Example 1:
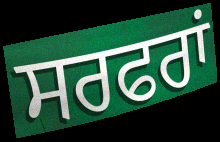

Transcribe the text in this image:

ਸਰਫਰਾਂ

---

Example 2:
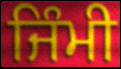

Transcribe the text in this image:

ਜਿੰਮੀ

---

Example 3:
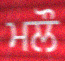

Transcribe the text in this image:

ਮਲੌ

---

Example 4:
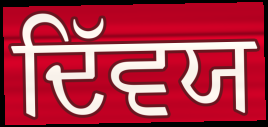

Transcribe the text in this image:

ਦਿੱਵਯ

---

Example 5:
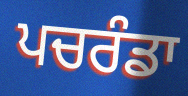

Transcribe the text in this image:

ਪਚਰੰਡਾ